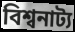
বিশ্বনাট্য